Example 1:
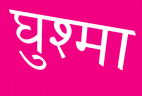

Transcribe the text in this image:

घुश्मा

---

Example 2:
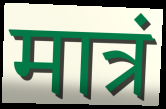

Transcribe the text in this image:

मात्रं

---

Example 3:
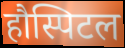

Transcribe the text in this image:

हौस्पिटल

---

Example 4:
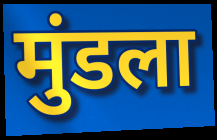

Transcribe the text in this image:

मुंडला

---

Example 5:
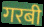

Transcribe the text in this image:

गरबी